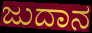
ಜುದಾನ